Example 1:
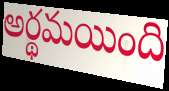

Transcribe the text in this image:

అర్థమయింది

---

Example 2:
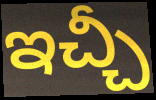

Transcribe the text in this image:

ఇచ్చీ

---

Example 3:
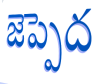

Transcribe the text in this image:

జెప్పెద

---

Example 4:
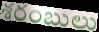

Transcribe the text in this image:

శరంబులు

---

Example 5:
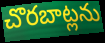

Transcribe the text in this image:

చొరబాట్లను